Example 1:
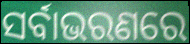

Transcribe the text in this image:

ସର୍ବାଭରଣରେ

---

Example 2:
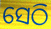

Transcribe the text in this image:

ସେଠି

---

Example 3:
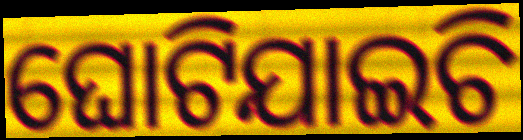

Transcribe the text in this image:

ଘୋଟିଯାଇଚି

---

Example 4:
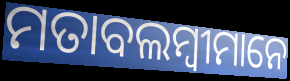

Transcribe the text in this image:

ମତାବଲମ୍ବୀମାନେ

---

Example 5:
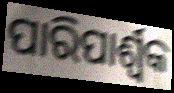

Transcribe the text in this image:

ପାରିପାର୍ଶ୍ବକ